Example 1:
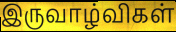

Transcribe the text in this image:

இருவாழ்விகள்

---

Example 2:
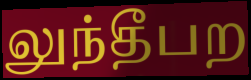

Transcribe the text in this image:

லுந்தீபற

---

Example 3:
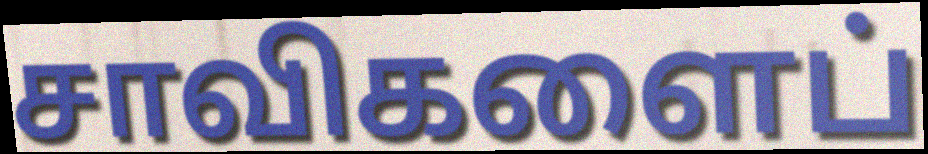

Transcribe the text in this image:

சாவிகளைப்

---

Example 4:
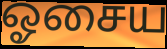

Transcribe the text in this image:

ஓசைய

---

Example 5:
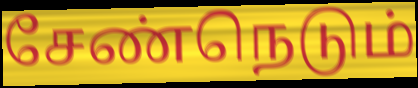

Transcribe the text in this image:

சேண்நெடும்